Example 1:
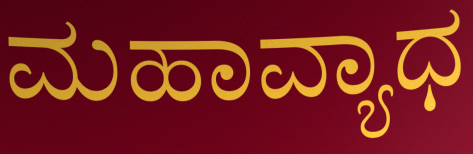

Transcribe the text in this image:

ಮಹಾವ್ಯಾಧ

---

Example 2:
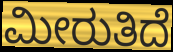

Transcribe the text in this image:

ಮೀರುತಿದೆ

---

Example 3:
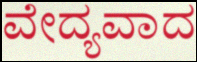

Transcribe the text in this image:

ವೇದ್ಯವಾದ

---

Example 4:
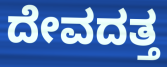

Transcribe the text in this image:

ದೇವದತ್ತ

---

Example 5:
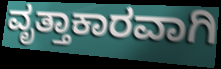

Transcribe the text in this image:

ವೃತ್ತಾಕಾರವಾಗಿ